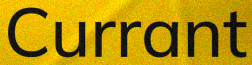
Currant